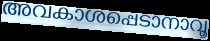
അവകാശപ്പെടാനാവൂ